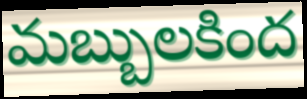
మబ్బులకింద